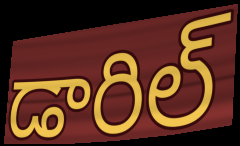
డారిల్